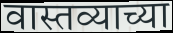
वास्तव्याच्या